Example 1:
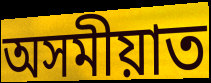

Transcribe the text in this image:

অসমীয়াত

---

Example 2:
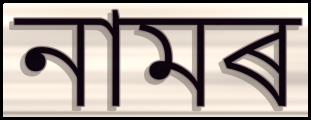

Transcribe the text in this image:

নামৰ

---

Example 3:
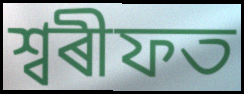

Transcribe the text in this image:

শ্বৰীফত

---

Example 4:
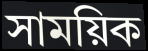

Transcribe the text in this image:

সাময়িক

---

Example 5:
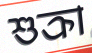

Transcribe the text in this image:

শুক্ৰা